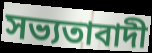
সভ্যতাবাদী